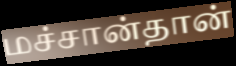
மச்சான்தான்